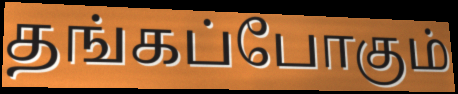
தங்கப்போகும்